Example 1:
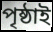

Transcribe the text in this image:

পৃষ্ঠাই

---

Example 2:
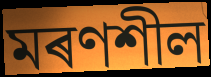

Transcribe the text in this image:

মৰণশীল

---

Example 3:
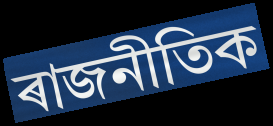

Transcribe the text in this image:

ৰাজনীতিক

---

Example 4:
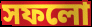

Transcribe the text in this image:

সফলো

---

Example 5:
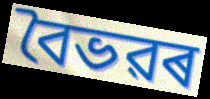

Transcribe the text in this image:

বৈভৱৰ